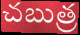
చబుత్ర